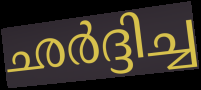
ഛർദ്ദിച്ച